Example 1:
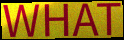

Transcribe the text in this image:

WHAT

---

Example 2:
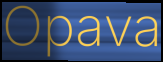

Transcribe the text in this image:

Opava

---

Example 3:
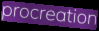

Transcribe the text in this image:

procreation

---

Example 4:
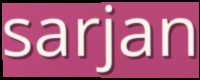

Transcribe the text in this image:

sarjan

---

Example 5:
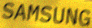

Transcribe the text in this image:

SAMSUNG